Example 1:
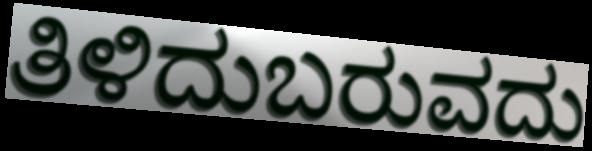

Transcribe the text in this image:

ತಿಳಿದುಬರುವದು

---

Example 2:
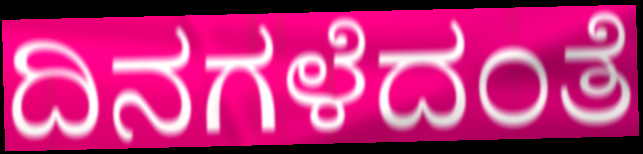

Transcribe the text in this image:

ದಿನಗಳೆದಂತೆ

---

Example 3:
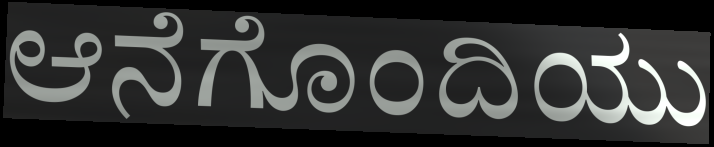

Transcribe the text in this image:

ಆನೆಗೊಂದಿಯು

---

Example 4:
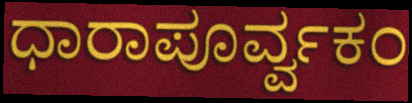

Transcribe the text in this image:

ಧಾರಾಪೂರ್ವ್ವಕಂ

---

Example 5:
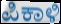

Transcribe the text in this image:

ಪಿಕಾಳಿ